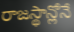
రాజస్థాన్లోనే